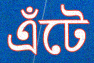
এঁটে